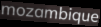
mozambique